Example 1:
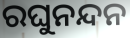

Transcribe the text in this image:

ରଘୁନନ୍ଦନ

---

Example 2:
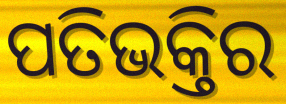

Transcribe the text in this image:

ପତିଭକ୍ତିର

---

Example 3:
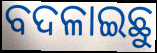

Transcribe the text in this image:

ବଦଳାଇଛୁ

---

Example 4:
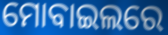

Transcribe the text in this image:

ମୋବାଇଲରେ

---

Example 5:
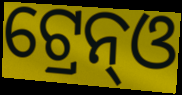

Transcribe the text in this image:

ଟ୍ରେନ୍ଓ